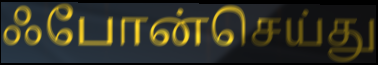
ஃபோன்செய்து